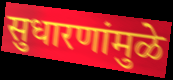
सुधारणांमुळे